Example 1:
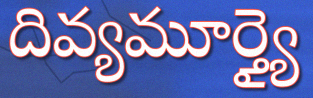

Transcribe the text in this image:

దివ్యమూర్త్యై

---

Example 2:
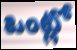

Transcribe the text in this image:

ఒంట్లో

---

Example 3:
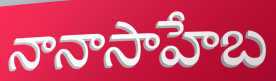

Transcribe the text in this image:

నానాసాహేబ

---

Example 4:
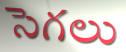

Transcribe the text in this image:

సెగలు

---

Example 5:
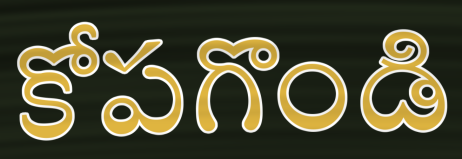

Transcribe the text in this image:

కోపగొండి